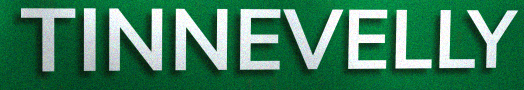
TINNEVELLY